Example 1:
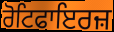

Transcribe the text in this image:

ਰੋਟਿਫਾਇਰਜ਼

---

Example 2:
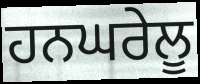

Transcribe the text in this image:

ਹਨਘਰੇਲੂ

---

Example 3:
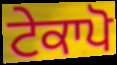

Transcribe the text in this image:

ਟੇਕਾਪੋ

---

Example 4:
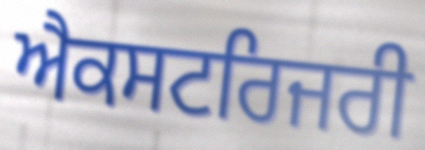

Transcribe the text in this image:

ਐਕਸਟਰਿਜਰੀ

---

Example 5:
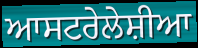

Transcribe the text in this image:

ਆਸਟਰੇਲੇਸ਼ੀਆ